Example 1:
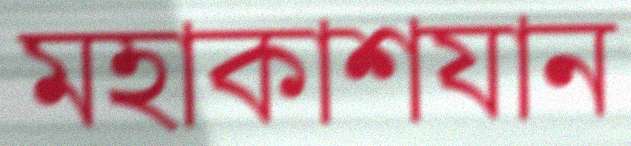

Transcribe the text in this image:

মহাকাশযান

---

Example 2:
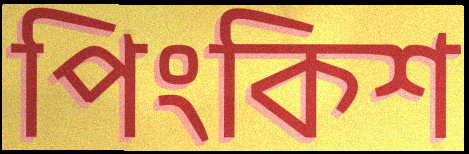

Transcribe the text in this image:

পিংকিশ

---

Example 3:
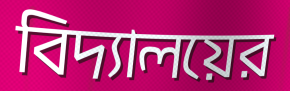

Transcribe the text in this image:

বিদ্যালয়ের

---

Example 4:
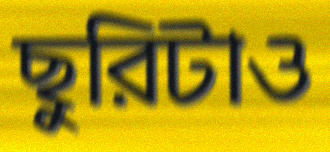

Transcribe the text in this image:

ছুরিটাও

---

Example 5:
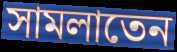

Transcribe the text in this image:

সামলাতেন